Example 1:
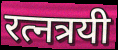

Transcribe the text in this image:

रत्नत्रयी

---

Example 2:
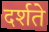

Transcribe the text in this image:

दर्शते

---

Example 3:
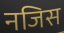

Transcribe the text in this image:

नजिस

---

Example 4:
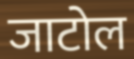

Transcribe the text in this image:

जाटोल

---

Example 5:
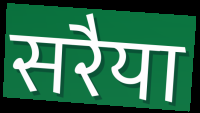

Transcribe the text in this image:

सरैया